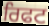
ਰਿਫਟ